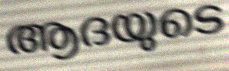
ആദയുടെ